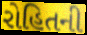
રોહિતની